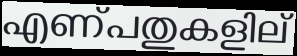
എണ്പതുകളില്